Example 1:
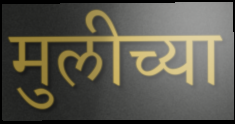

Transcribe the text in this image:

मुलीच्या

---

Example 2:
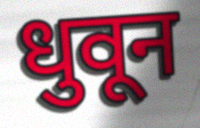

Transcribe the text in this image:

धुवून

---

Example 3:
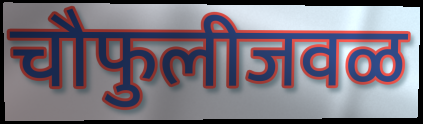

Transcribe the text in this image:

चौफुलीजवळ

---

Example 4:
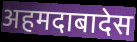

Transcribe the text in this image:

अहमदाबादेस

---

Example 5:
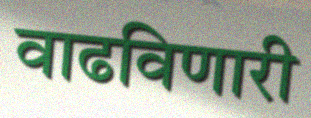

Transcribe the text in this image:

वाढविणारी